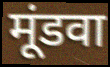
मूंडवा